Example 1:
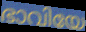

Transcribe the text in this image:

ഭാവിയേ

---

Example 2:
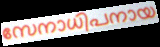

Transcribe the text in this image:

സേനാധിപനായ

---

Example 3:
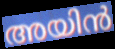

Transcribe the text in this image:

അയിൻ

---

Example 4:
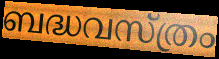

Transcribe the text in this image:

ബദ്ധവസ്ത്രം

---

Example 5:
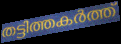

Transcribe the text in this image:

തട്ടിത്തകർത്ത്